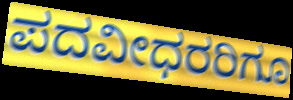
ಪದವೀಧರರಿಗೂ